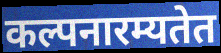
कल्पनारम्यतेत